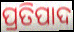
ପ୍ରତିପାଦ